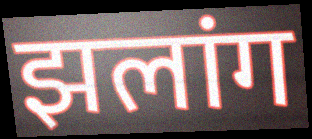
झलांग